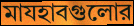
মাযহাবগুলোর